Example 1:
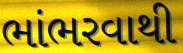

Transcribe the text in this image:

ભાંભરવાથી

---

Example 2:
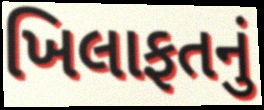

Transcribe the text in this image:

ખિલાફતનું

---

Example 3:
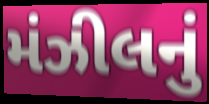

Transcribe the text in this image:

મંઝીલનું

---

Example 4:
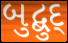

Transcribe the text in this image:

બુદ્બુદ્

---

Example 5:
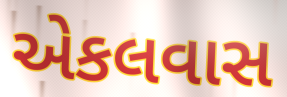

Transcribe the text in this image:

એકલવાસ